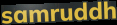
samruddh